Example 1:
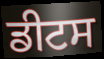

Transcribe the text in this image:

ਡੀਟਸ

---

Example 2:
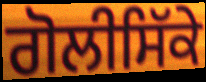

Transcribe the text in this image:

ਗੋਲੀਸਿੱਕੇ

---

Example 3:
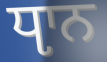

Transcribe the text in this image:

ਧੵਾਨ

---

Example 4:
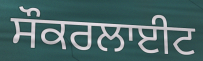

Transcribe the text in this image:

ਸੌਕਰਲਾਈਟ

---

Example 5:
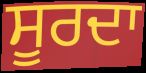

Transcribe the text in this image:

ਸੂਰਦਾ